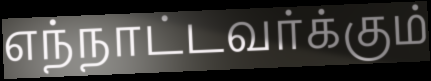
எந்நாட்டவர்க்கும்